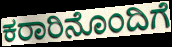
ಕರಾರಿನೊಂದಿಗೆ